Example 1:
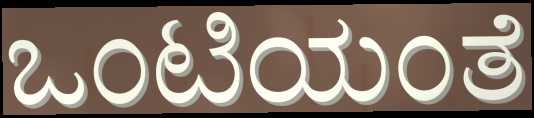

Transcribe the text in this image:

ಒಂಟಿಯಂತೆ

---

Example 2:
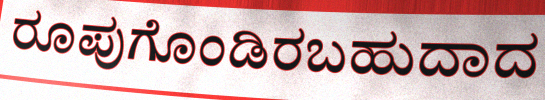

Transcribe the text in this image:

ರೂಪುಗೊಂಡಿರಬಹುದಾದ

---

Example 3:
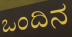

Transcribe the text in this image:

ಒಂದಿನ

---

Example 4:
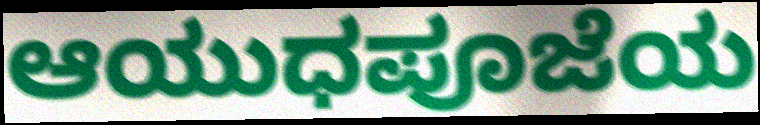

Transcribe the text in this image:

ಆಯುಧಪೂಜೆಯ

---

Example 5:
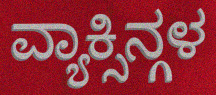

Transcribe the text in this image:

ವ್ಯಾಕ್ಸಿನ್ಗಳ